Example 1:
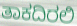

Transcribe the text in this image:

ತಾಕದಿರಲಿ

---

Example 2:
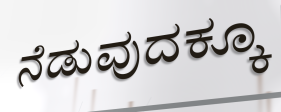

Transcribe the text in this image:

ನೆಡುವುದಕ್ಕೂ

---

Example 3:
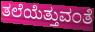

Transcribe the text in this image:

ತಲೆಯೆತ್ತುವಂತೆ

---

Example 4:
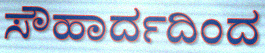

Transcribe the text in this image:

ಸೌಹಾರ್ದದಿಂದ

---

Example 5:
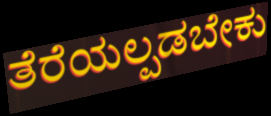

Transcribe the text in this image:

ತೆರೆಯಲ್ಪಡಬೇಕು